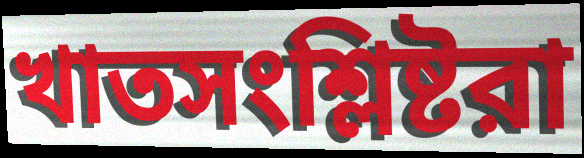
খাতসংশ্লিষ্টরা